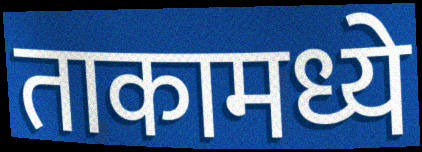
ताकामध्ये